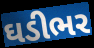
ઘડીભર